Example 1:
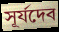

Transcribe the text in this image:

সূর্যদেব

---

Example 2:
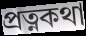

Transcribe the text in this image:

প্রত্নকথা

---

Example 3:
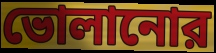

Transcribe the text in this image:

ভোলানোর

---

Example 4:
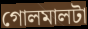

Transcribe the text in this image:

গোলমালটা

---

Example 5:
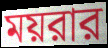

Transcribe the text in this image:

ময়রার